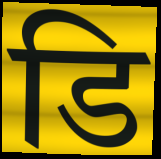
डि